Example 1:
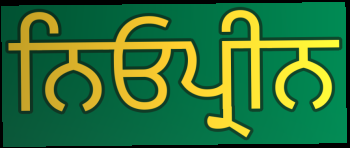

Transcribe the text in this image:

ਨਿਓਪ੍ਰੀਨ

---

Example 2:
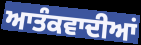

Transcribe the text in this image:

ਆਤੰਕਵਾਦੀਆਂ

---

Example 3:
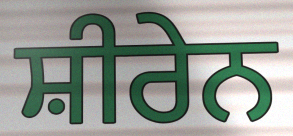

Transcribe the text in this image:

ਸ਼ੀਰੇਨ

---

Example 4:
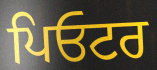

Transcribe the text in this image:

ਪਿਓਟਰ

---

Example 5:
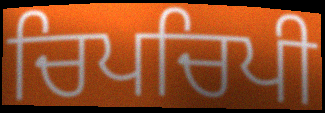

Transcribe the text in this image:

ਚਿਪਚਿਪੀ